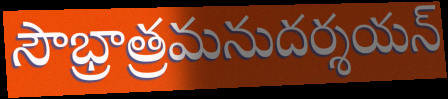
సౌభ్రాత్రమనుదర్శయన్